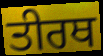
ਤੀਰਥ